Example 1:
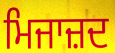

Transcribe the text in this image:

ਮਿਜਾਜ਼ਦ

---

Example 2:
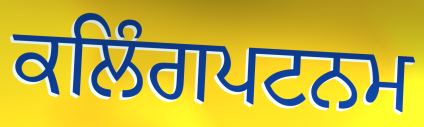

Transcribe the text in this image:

ਕਲਿੰਗਪਟਨਮ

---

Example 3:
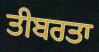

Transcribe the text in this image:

ਤੀਬਰਤਾ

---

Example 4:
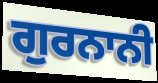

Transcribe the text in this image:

ਗੁਰਨਾਨੀ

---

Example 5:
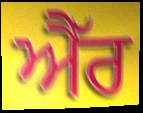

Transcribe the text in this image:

ਐੱਰ